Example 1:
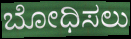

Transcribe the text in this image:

ಬೋಧಿಸಲು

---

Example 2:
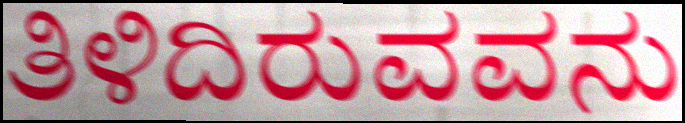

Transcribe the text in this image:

ತಿಳಿದಿರುವವನು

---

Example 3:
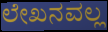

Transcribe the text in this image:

ಲೇಖನವಲ್ಲ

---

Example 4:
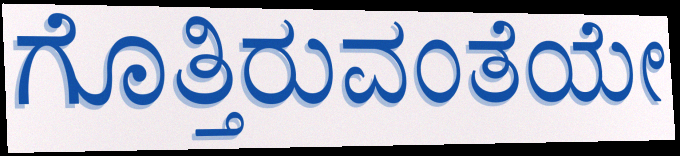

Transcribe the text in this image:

ಗೊತ್ತಿರುವಂತೆಯೇ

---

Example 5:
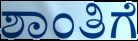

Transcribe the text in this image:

ಶಾಂತಿಗೆ